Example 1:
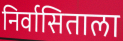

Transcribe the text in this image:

निर्वासिताला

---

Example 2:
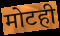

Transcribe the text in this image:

मोटही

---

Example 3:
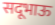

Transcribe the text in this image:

सदूभाऊ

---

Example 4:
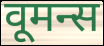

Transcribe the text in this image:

वूमन्स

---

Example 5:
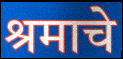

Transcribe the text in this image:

श्रमाचे